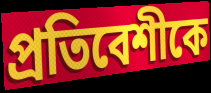
প্রতিবেশীকে